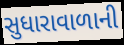
સુધારાવાળાની